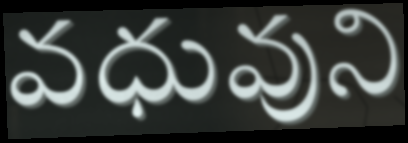
వధువుని